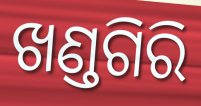
ଖଣ୍ଡଗିରି